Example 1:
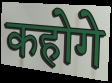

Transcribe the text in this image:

कहोगे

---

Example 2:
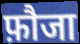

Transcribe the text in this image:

फ़ौजा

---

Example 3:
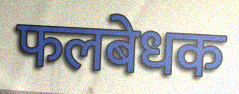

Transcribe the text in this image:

फलबेधक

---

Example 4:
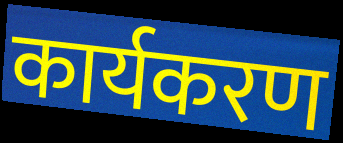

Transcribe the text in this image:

कार्यकरण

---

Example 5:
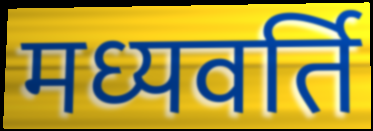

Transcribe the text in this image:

मध्यवर्ति